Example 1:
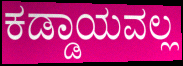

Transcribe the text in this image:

ಕಡ್ಡಾಯವಲ್ಲ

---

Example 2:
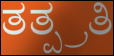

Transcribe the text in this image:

ತತ್ಪ್ರತಿ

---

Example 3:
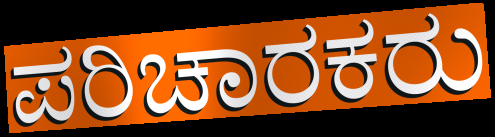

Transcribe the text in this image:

ಪರಿಚಾರಕರು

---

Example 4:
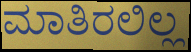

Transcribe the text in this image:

ಮಾತಿರಲಿಲ್ಲ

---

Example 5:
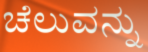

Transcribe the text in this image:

ಚೆಲುವನ್ನು